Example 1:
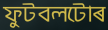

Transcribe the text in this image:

ফুটবলটোৰ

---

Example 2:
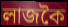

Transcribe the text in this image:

লাজকৈ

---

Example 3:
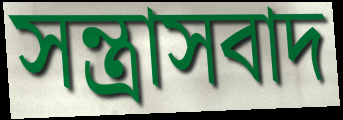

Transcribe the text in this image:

সন্ত্ৰাসবাদ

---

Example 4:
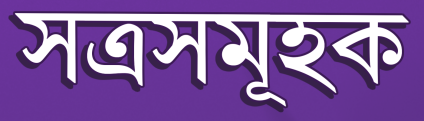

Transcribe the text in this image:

সত্ৰসমূহক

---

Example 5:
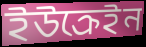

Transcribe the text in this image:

ইউক্ৰেইন